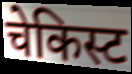
चेकिस्ट